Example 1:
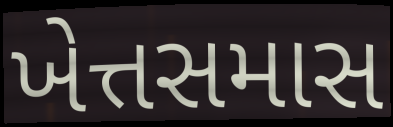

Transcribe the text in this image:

ખેત્તસમાસ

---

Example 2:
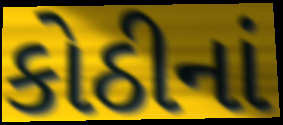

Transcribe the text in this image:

કોઠીનાં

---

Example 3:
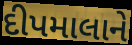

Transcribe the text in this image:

દીપમાલાને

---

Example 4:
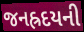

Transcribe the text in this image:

જનહ્રદયની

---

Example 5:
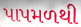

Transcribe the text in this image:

પાપમળથી